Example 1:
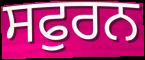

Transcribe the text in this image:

ਸਫੁਰਨ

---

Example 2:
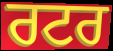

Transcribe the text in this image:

ਰਟਰ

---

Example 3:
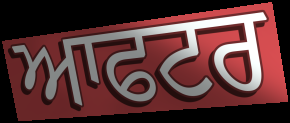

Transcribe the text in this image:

ਆਫਟਰ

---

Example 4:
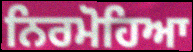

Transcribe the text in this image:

ਨਿਰਮੋਹਿਆ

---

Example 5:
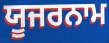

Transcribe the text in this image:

ਯੂਜਰਨਾਮ